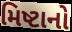
મિષ્ટાનો